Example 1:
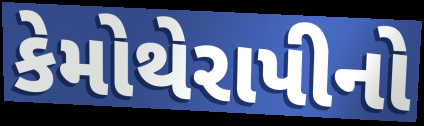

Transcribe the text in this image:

કેમોથેરાપીનો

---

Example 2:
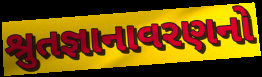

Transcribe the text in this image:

શ્રુતજ્ઞાનાવરણનો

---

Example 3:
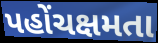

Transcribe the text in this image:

પહોંચક્ષમતા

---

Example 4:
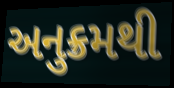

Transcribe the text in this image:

અનુક્રમથી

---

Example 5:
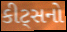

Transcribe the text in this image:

કીટ્સનો